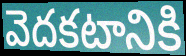
వెదకటానికి